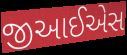
જીઆઈએસ